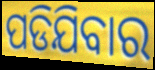
ପଡିଯିବାର